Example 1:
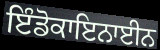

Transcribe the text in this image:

ਇੰਡੋਕਾਇਨਾਈਨ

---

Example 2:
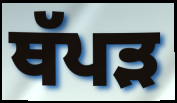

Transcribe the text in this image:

ਥੱਪੜ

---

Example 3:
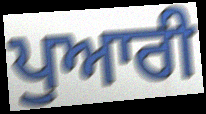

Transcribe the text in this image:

ਪੁਆਰੀ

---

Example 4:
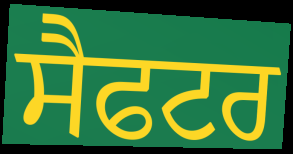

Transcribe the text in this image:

ਸੈਫਟਰ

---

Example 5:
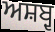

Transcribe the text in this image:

ਅਸ਼ਬ੍ਦ